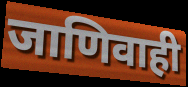
जाणिवाही